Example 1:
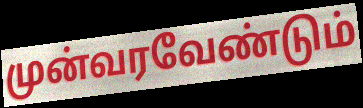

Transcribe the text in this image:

முன்வரவேண்டும்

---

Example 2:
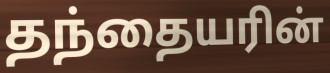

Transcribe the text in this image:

தந்தையரின்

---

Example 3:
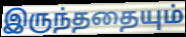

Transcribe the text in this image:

இருந்ததையும்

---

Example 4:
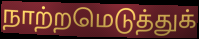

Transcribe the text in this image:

நாற்றமெடுத்துக்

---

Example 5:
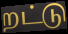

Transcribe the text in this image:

றட்டு